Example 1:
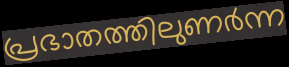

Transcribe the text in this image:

പ്രഭാതത്തിലുണർന്ന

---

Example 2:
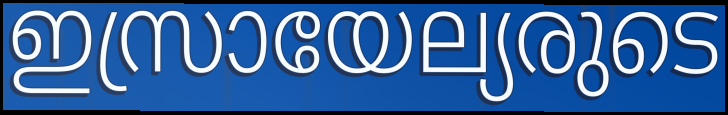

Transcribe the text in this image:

ഇസ്രായേല്യരുടെ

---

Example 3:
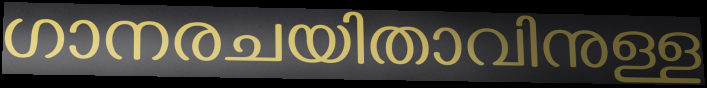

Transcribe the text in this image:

ഗാനരചയിതാവിനുള്ള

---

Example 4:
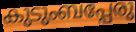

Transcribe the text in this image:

കുടുംബപ്പേരു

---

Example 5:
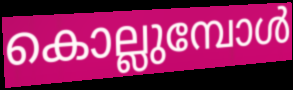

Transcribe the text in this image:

കൊല്ലുമ്പോൾ